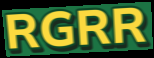
RGRR